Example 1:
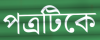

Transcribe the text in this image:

পত্রটিকে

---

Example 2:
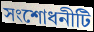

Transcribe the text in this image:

সংশোধনীটি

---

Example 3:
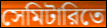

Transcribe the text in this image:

সেমিটারিতে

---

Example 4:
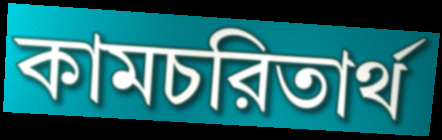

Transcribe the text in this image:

কামচরিতার্থ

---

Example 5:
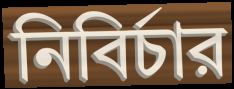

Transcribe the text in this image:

নিবির্চার